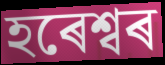
হৰেশ্বৰ